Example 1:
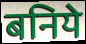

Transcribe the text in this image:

बनिये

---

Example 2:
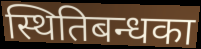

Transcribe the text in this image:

स्थितिबन्धका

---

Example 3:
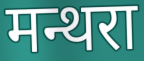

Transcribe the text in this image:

मन्थरा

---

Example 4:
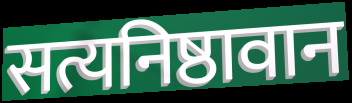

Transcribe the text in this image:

सत्यनिष्ठावान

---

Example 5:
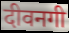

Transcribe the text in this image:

दीवनगी